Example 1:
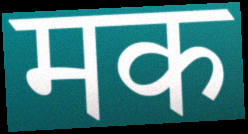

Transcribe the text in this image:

मक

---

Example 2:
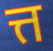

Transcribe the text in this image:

त्त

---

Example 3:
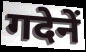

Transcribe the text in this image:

गदेनें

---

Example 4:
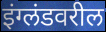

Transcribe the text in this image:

इंग्लंडवरील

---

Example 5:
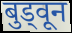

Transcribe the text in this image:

बुड्वून